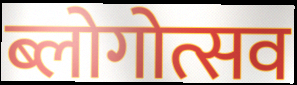
ब्लोगोत्सव